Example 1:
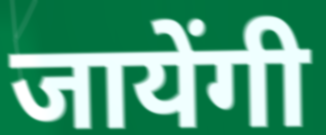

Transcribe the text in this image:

जायेंगी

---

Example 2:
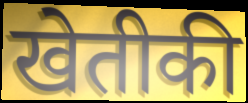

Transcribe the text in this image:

खेतीकी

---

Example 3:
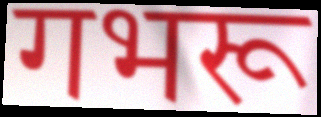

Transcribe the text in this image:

गभरू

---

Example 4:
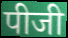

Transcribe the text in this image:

पीजी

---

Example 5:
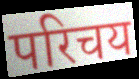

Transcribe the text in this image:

परिचय